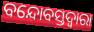
ବନ୍ଦୋବସ୍ତଦ୍ୱାରା